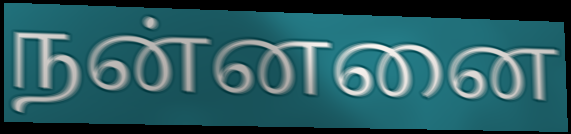
நன்னனை